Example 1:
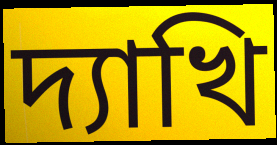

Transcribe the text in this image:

দ্যাখি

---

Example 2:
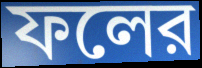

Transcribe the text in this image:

ফলের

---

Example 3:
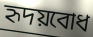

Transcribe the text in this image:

হৃদয়বোধ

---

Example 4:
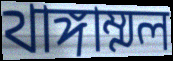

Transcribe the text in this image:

থাঙ্গাম্মল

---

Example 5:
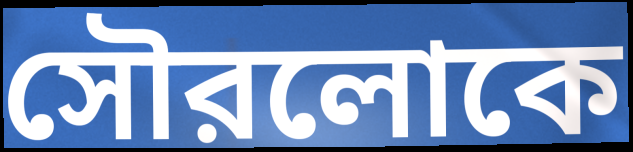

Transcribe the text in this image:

সৌরলোকে